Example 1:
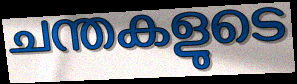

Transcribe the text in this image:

ചന്തകളുടെ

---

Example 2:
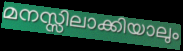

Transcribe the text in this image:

മനസ്സിലാക്കിയാലും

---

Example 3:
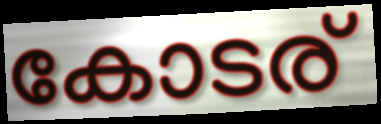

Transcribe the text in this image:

കോടര്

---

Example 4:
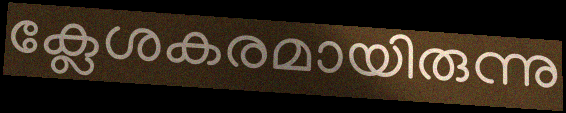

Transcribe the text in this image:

ക്ലേശകരമായിരുന്നു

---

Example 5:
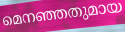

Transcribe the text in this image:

മെനഞ്ഞതുമായ